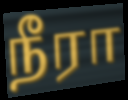
நீரா